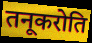
तनूकरोति